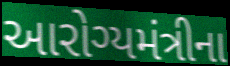
આરોગ્યમંત્રીના